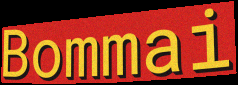
Bommai